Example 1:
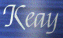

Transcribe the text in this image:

Keay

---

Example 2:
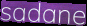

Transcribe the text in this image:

sadane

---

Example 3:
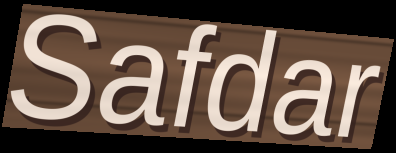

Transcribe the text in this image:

Safdar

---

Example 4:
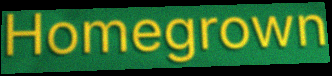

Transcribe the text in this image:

Homegrown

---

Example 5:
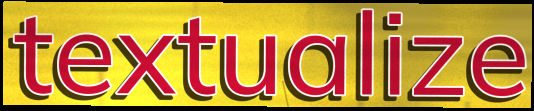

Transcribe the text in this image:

textualize